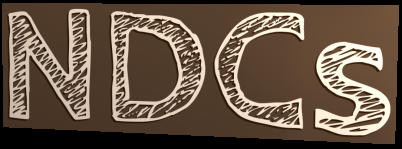
NDCs